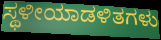
ಸ್ಥಳೀಯಾಡಳಿತಗಳು